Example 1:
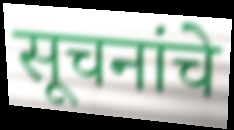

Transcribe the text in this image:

सूचनांचे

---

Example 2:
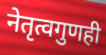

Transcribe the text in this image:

नेतृत्वगुणही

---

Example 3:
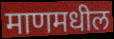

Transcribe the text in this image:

माणमधील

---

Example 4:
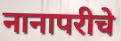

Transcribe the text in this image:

नानापरीचे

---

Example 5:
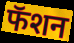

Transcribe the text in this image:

फॅशन